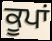
ਕੂਪਾਂ